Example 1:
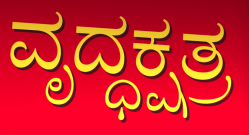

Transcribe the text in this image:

ವೃದ್ಧಕ್ಷತ್ರ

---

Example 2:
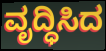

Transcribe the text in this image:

ವೃದ್ಧಿಸಿದ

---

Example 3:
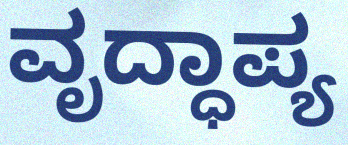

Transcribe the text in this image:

ವೃದ್ಧಾಪ್ಯ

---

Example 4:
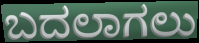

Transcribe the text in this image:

ಬದಲಾಗಲು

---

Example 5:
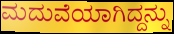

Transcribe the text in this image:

ಮದುವೆಯಾಗಿದ್ದನ್ನು